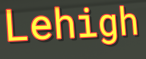
Lehigh